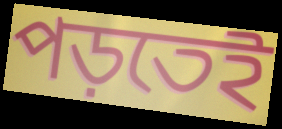
পড়তেই